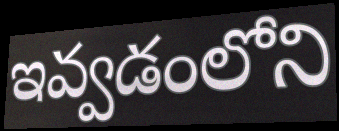
ఇవ్వడంలోని